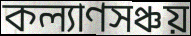
কল্যাণসঞ্চয়